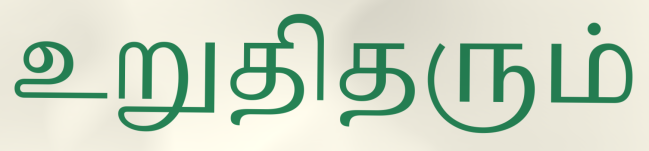
உறுதிதரும்